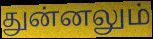
துன்னலும்